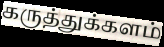
கருத்துக்களம்